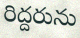
రిద్దరును